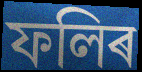
ফলিৰ